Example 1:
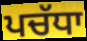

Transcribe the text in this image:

ਪਚੱਧਾ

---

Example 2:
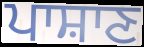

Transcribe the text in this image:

ਪਾਸ਼ਾਣ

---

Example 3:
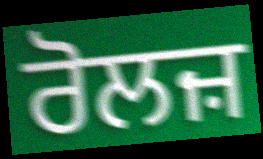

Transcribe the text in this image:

ਰੋਲਜ਼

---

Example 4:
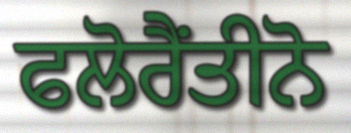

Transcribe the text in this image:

ਫਲੋਰੈਂਤੀਨੋ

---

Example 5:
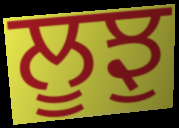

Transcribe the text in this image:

ਲੂਝੁ